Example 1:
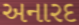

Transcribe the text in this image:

અનારદ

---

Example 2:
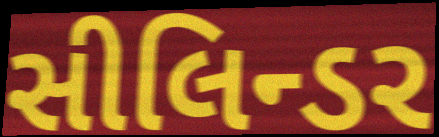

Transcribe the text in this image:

સીલિન્ડર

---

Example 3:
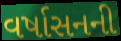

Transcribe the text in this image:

વર્ષાસનની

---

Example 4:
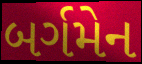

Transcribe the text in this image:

બર્ગમેન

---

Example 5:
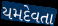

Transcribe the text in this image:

યમદેવતા